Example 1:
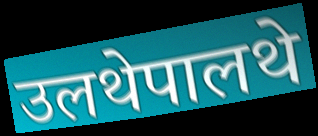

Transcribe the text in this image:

उलथेपालथे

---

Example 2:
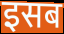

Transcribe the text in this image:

इसब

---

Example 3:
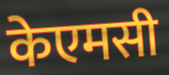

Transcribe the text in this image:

केएमसी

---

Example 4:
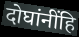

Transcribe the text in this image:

दोघांनींहि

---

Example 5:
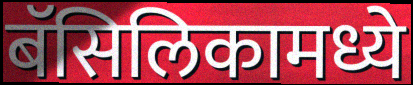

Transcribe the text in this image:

बॅसिलिकामध्ये